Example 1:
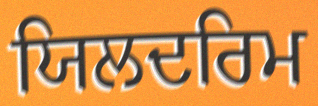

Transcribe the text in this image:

ਯਿਲਦਰਿਮ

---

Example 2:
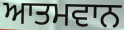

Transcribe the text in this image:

ਆਤਮਵਾਨ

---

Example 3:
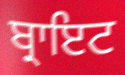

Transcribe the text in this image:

ਬ੍ਰਾਇਟ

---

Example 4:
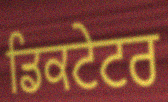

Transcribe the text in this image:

ਡਿਕਟੇਟਰ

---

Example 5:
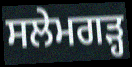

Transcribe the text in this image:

ਸਲੇਮਗੜ੍ਹ